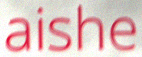
aishe